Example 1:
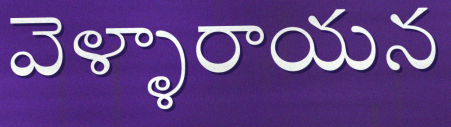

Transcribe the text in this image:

వెళ్ళారాయన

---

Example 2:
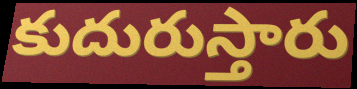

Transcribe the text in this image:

కుదురుస్తారు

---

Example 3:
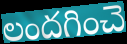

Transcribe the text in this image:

లందగించె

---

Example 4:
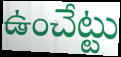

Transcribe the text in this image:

ఉంచేట్టు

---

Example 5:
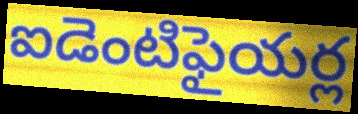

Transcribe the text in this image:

ఐడెంటిఫైయర్ల